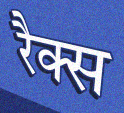
रैक्स